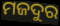
ମଜଦୁର